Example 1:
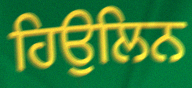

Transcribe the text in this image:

ਹਿਉਲਿਨ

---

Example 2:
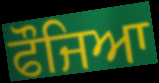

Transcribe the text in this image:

ਫੌਜਿਆ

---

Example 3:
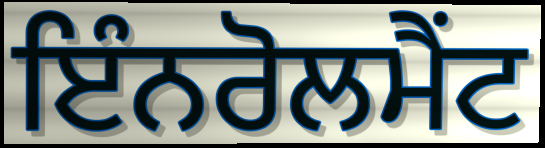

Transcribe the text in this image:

ਇੰਨਰੋਲਮੈਂਟ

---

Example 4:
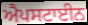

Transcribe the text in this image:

ਐਪਸਟਾਈਨ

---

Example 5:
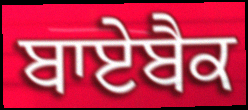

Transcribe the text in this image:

ਬਾਏਬੈਕ